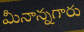
మీనాన్నగారు